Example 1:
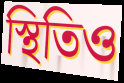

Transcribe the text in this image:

স্থিতিও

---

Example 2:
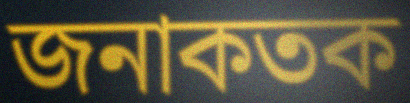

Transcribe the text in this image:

জনাকতক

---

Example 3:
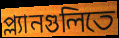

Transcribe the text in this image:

প্ল্যানগুলিতে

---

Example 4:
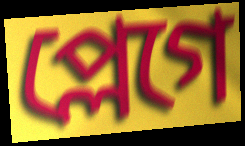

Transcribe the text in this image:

প্লেগে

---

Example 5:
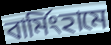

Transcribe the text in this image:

বার্মিংহামে